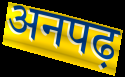
अनपढ़